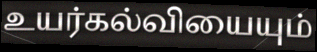
உயர்கல்வியையும்